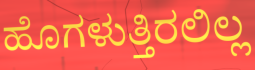
ಹೊಗಳುತ್ತಿರಲಿಲ್ಲ